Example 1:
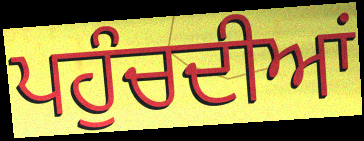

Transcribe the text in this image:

ਪਹੁੰਚਦੀਆਂ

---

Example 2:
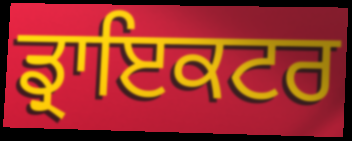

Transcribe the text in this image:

ਡ੍ਰਾਇਕਟਰ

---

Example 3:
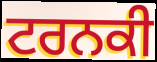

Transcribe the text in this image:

ਟਰਨਕੀ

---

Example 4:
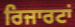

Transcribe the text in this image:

ਰਿਜਾਰਟਾਂ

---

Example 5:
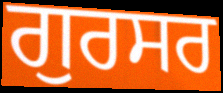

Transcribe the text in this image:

ਗੁਰਸਰ